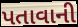
પતાવાની